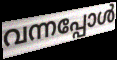
വന്നപ്പോൾ